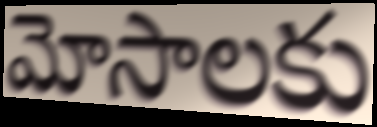
మోసాలకు